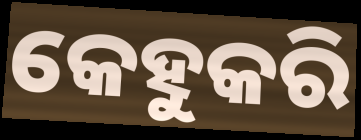
କେହୁକରି